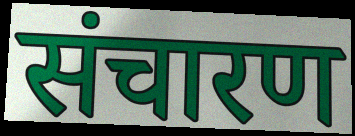
संचारण